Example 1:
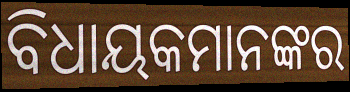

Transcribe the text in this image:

ବିଧାୟକମାନଙ୍କର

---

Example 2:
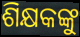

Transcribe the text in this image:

ଶିକ୍ଷକଙ୍କୁ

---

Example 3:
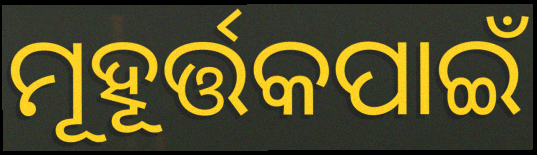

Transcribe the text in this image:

ମୂହୂର୍ତ୍ତକପାଇଁ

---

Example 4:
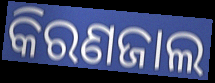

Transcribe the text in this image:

କିରଣଜାଲ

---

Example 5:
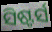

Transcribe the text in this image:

ସିଷ୍ଟର୍ସ